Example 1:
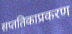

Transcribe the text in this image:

सप्ततिकाप्रकरण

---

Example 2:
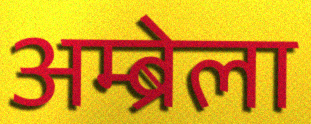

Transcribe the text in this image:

अम्‍ब्रेला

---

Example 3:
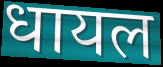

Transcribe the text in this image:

धायल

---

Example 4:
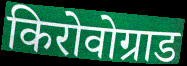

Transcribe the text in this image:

किरोवोग्राड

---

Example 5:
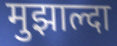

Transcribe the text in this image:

मुझाल्दा